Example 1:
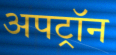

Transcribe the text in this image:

अपट्रॉन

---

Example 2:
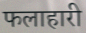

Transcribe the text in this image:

फलाहारी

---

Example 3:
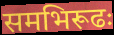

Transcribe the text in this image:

समभिरूढः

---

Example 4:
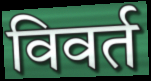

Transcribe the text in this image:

विवर्त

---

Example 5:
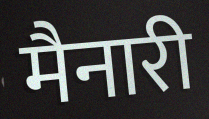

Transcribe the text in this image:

मैनारी